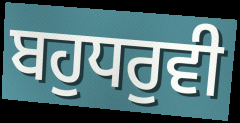
ਬਹੁਧਰੁਵੀ